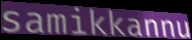
samikkannu